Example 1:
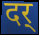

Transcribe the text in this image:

दर्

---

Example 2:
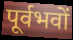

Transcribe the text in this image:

पूर्वभवों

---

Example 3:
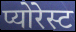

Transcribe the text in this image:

प्योरेस्ट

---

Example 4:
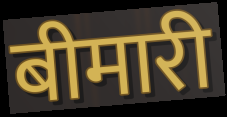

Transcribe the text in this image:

बीमारी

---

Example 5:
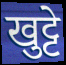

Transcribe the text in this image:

खुट्टे